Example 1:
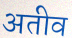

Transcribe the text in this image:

अतीव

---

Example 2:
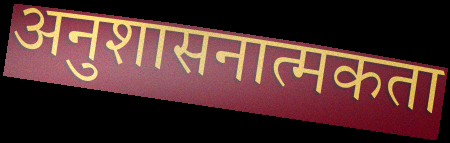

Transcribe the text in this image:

अनुशासनात्मकता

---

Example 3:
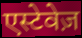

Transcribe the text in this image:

एस्टेवेज़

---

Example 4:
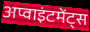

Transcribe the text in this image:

अप्वाइंटमेंट्स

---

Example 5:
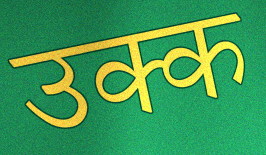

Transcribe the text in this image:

उक्क